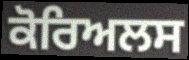
ਕੋਰਿਅਲਸ